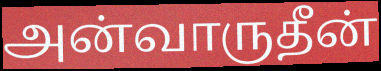
அன்வாருதீன்